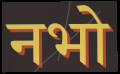
नभो